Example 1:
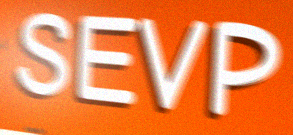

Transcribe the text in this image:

SEVP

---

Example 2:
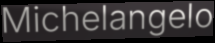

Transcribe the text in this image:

Michelangelo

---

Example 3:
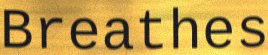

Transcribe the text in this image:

Breathes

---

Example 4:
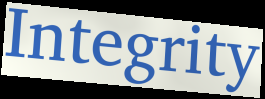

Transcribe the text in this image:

Integrity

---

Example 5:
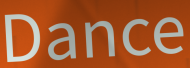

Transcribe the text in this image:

Dance